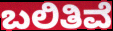
ಬಲಿತಿವೆ